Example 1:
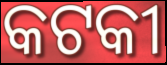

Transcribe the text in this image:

କଟକୀ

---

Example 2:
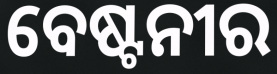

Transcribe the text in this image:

ବେଷ୍ଟନୀର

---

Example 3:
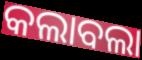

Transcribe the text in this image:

କଲାବଲା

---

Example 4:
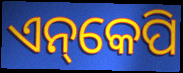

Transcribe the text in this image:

ଏନ୍‌କେପି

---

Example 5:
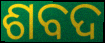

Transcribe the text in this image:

ଶବଦ